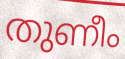
തുണീം